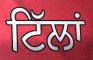
ਟਿੱਲਾਂ